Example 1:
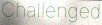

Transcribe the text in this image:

Challenged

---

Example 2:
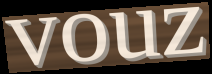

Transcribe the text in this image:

vouz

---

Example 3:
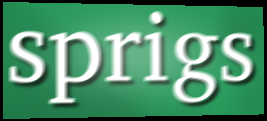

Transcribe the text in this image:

sprigs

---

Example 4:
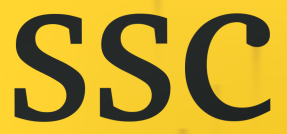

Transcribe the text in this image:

ssc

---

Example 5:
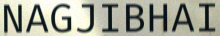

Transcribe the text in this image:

NAGJIBHAI